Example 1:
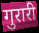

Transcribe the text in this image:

गुरारी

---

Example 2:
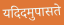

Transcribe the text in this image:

यदिदमुपासते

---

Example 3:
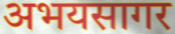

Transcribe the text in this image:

अभयसागर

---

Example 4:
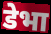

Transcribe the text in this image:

डेभा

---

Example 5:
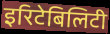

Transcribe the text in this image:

इरिटेबिलिटी